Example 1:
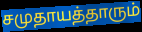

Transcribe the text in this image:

சமுதாயத்தாரும்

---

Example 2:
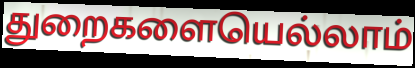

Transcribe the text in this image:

துறைகளையெல்லாம்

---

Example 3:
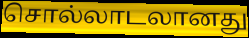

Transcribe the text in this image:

சொல்லாடலானது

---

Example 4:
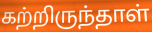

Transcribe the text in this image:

கற்றிருந்தாள்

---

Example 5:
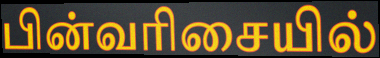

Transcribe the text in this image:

பின்வரிசையில்